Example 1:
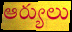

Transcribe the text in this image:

ఆర్యులు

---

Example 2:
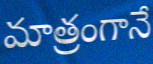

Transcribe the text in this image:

మాత్రంగానే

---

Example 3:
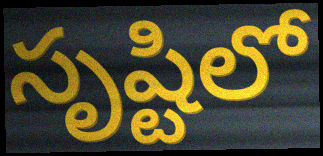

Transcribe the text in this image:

సృష్టిలో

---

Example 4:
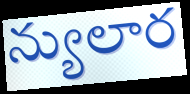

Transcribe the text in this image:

న్యులార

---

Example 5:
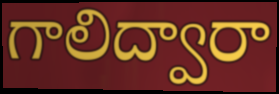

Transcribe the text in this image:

గాలిద్వారా